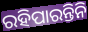
ରହିପାରନ୍ତିନି